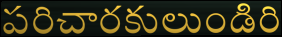
పరిచారకులుండిరి